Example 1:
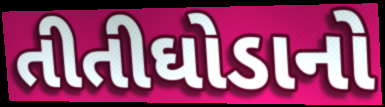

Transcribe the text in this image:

તીતીઘોડાનો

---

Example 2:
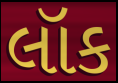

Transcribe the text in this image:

લૉક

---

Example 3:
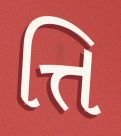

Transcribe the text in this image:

ત્તિ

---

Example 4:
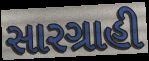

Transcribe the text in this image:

સારગ્રાહી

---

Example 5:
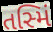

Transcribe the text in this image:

તસ્મિં